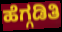
ಹೆಗ್ಗಡಿತಿ